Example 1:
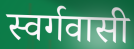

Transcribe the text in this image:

स्वर्गवासी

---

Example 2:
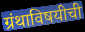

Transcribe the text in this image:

ग्रंथाविषयीची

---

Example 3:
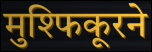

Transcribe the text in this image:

मुश्फिकूरने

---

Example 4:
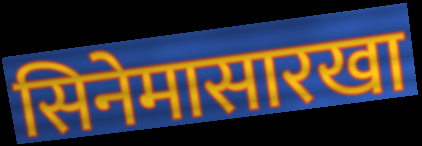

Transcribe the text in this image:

सिनेमासारखा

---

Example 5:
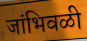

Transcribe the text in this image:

जांभिवळी